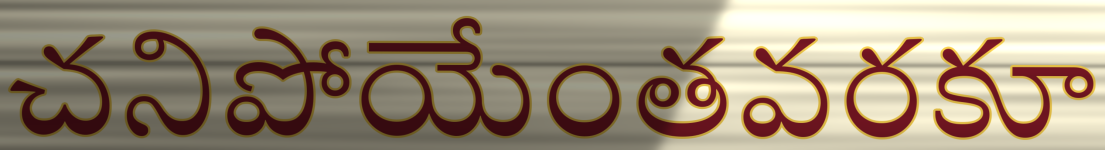
చనిపోయేంతవరకూ